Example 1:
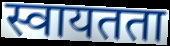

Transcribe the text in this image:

स्वायतता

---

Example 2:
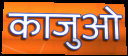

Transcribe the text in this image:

काजुओ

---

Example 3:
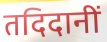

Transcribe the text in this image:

तदिदानीं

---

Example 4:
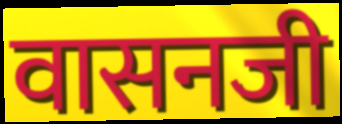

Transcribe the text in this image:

वासनजी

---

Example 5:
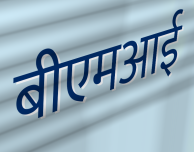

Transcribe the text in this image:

बीएमआई